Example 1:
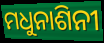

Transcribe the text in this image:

ମଧୁନାଶିନୀ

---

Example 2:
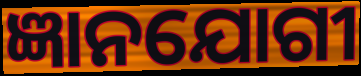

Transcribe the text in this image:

ଜ୍ଞାନଯୋଗୀ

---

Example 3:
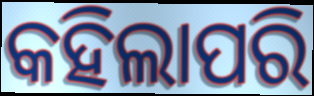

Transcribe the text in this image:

କହିଲାପରି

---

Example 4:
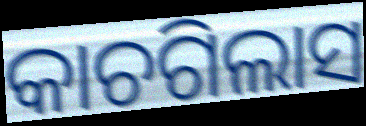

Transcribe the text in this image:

କାଚଗିଲାସ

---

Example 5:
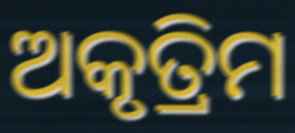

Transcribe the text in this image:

ଅକୃତ୍ରିମ